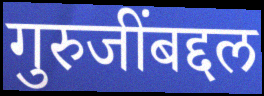
गुरुजींबद्दल